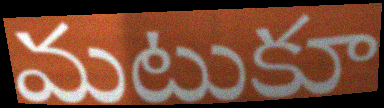
మటుకూ